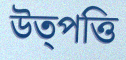
উত্পত্তি